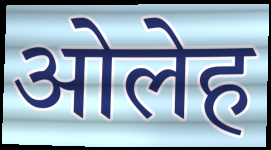
ओलेह